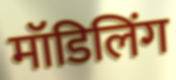
मॉडिलिंग